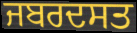
ਜਬਰਦਸਤ